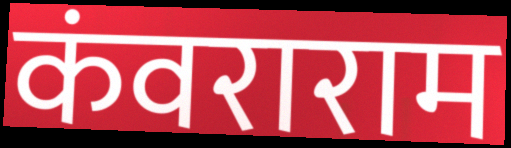
कंवराराम